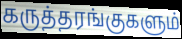
கருத்தரங்குகளும்